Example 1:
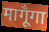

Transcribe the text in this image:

मागूँगा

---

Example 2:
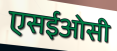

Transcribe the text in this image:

एसईओसी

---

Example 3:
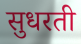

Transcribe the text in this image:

सुधरती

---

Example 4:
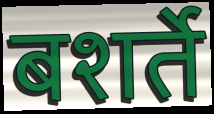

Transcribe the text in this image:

बशर्ते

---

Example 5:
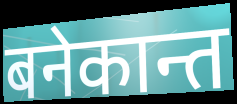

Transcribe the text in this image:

बनेकान्त